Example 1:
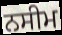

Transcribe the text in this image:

ਨਸੀਮ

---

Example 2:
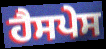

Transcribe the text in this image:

ਹੈਸਪੇਸ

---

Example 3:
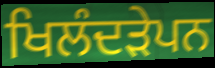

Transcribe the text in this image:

ਖਿਲੰਦੜੇਪਨ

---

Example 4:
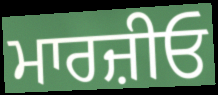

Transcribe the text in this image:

ਮਾਰਜ਼ੀਓ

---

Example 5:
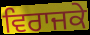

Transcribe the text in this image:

ਵਿਰਾਜਕੇ